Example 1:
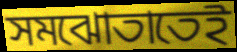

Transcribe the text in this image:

সমঝোতাতেই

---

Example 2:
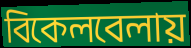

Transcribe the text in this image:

বিকেলবেলায়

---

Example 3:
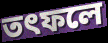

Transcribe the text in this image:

তৎফলে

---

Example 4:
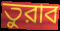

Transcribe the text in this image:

তুরাব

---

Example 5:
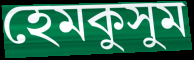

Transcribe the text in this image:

হেমকুসুম